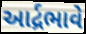
આર્દ્રભાવે